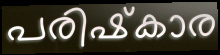
പരിഷ്‌കാര